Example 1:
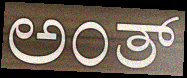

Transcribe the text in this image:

ಅಂತ್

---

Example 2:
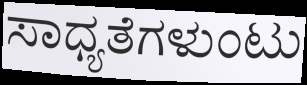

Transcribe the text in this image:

ಸಾಧ್ಯತೆಗಳುಂಟು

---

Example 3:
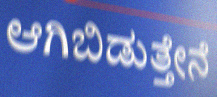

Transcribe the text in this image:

ಆಗಿಬಿಡುತ್ತೇನೆ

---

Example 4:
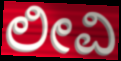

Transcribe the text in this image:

ಲೀವಿ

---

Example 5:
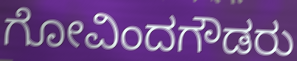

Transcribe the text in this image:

ಗೋವಿಂದಗೌಡರು